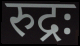
रुद्रः